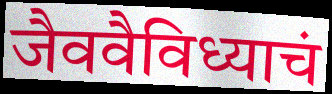
जैववैविध्याचं